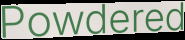
Powdered